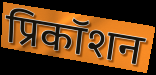
प्रिकॉशन